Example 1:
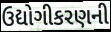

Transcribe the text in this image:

ઉદ્યોગીકરણની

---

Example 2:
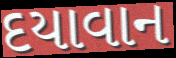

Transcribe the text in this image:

દયાવાન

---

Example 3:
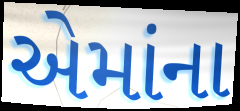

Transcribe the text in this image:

એમાંના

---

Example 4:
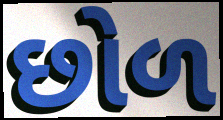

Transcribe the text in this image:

છોળ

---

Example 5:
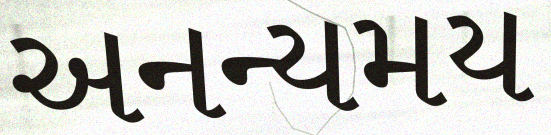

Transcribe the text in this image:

અનન્યમય